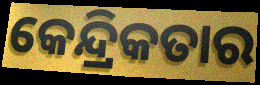
କେନ୍ଦ୍ରିକତାର